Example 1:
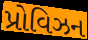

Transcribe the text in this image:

પ્રોવિઝન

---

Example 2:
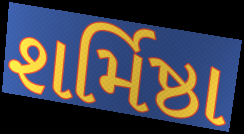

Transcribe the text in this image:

શર્મિષ્ઠા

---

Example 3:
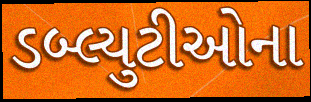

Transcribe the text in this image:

ડબ્લ્યુટીઓના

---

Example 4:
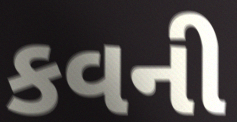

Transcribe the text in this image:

કવની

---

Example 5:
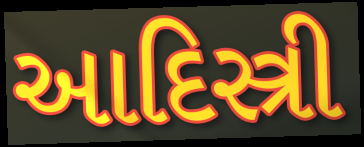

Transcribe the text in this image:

આદિસ્ત્રી